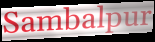
Sambalpur